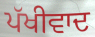
ਪੱਖੀਵਾਦ